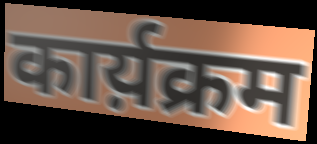
कार्य़क्रम